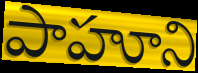
పాహూని